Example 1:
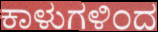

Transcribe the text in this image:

ಕಾಳುಗಳಿಂದ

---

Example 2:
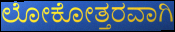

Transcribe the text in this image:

ಲೋಕೋತ್ತರವಾಗಿ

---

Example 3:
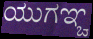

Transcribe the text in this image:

ಯುಗಞ್ಚ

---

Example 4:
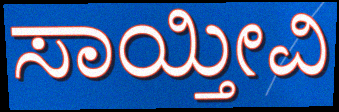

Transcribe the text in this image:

ಸಾಯ್ತೀವಿ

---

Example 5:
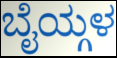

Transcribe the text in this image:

ಬೈಯ್ಗಳ